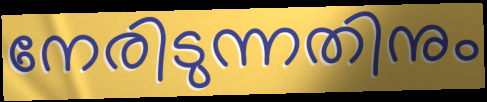
നേരിടുന്നതിനും